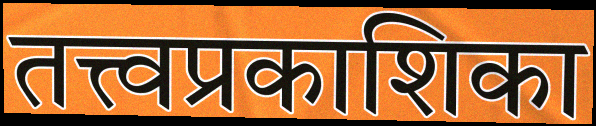
तत्त्वप्रकाशिका